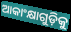
ଆକାଂକ୍ଷାଗୁଡ଼ିକୁ